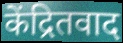
केंद्रितवाद